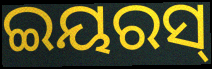
ଇୟରସ୍